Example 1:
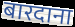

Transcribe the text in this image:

बारदाना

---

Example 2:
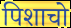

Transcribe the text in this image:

पिशाचो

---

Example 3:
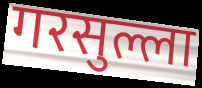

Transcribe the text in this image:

गरसुल्ला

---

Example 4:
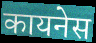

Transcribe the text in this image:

कायनेस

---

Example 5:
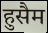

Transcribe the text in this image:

हुसैम